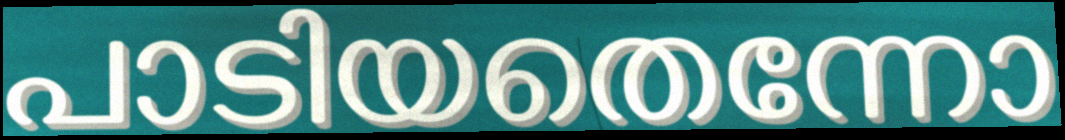
പാടിയതെന്നോ